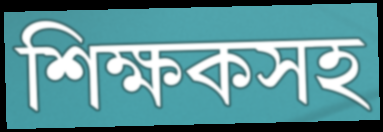
শিক্ষকসহ